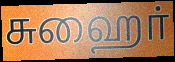
சுஹைர்